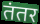
तंतर